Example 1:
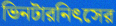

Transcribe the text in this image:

ভিনটারনিৎসের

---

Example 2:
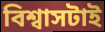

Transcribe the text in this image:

বিশ্বাসটাই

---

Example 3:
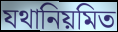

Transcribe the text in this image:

যথানিয়মিত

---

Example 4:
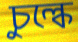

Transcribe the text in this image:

চুল্কে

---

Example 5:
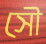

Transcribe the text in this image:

সৌ